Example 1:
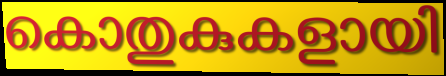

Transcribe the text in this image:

കൊതുകുകളായി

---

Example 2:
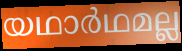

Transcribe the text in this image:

യഥാർഥമല്ല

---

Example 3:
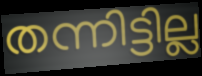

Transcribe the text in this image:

തന്നിട്ടില്ല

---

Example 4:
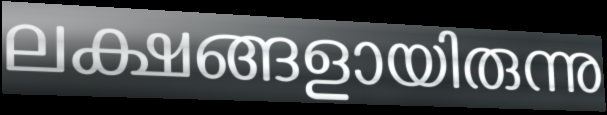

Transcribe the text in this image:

ലക്ഷങ്ങളായിരുന്നു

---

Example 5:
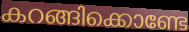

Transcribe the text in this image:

കറങ്ങിക്കൊണ്ടേ